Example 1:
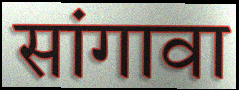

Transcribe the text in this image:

सांगावा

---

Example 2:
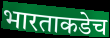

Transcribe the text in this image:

भारताकडेच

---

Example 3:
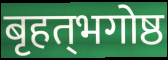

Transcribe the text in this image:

बृहत्‌भगोष्ठ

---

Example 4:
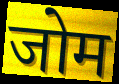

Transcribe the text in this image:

जोम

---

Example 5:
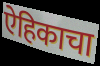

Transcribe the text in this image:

ऐहिकाचा